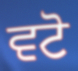
ਵਟੋ